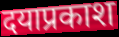
दयाप्रकाश